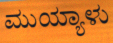
ಮುಯ್ಯಾಳು